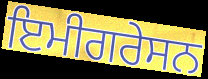
ਇਮੀਗਰੇਸਨ